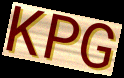
KPG